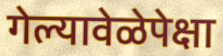
गेल्यावेळेपेक्षा